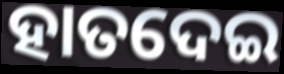
ହାତଦେଇ